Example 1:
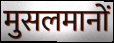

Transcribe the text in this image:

मुसलमानों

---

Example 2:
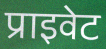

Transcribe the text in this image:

प्राइवेट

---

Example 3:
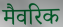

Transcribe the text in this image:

मैवरिक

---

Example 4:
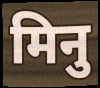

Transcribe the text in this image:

मिनु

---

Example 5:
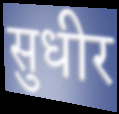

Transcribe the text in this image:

सुधीर